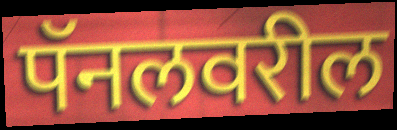
पॅनलवरील